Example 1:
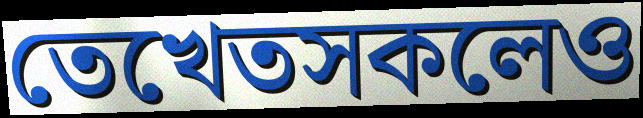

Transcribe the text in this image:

তেখেতসকলেও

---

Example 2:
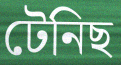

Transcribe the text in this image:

টেনিছ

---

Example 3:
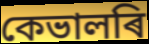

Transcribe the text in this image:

কেভালৰি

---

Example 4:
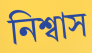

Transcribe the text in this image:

নিশ্বাস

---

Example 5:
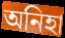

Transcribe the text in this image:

অনিহা